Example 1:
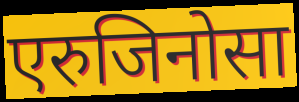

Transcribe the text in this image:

एरुजिनोसा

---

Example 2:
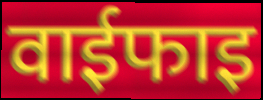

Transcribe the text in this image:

वाईफाइ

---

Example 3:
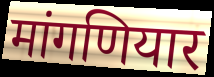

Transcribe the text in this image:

मांगणियार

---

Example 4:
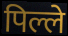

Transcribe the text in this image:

पिल्ले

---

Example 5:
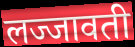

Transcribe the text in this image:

लज्जावती